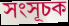
সংসূচক